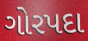
ગોરપદા